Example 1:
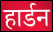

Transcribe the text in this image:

हार्डन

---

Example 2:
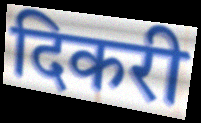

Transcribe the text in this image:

दिकरी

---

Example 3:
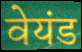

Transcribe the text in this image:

वेयंड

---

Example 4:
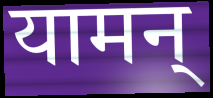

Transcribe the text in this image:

यामन्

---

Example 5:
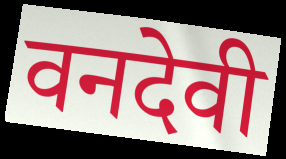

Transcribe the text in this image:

वनदेवी